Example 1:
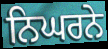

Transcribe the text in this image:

ਨਿਘਰਨੇ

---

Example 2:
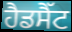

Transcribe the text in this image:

ਹੈਡਸੈੱਟ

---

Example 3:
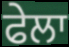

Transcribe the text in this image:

ਫੇਲਾ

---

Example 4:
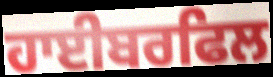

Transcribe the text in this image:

ਹਾਈਬਰਫਿਲ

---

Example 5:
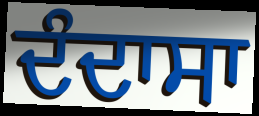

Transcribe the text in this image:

ਦੰਦਾਸਾ